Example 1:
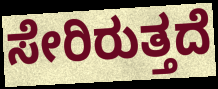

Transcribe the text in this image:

ಸೇರಿರುತ್ತದೆ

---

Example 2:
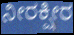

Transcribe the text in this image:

ನೀರಕ್ಷೀರ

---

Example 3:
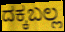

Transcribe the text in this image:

ದಕ್ಕಬಲ್ಲ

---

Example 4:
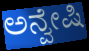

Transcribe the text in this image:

ಅನ್ವೇಷಿ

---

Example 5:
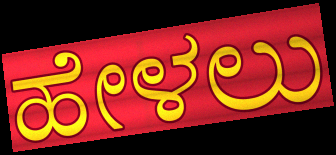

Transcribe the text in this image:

ಹೇಳಲು